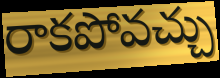
రాకపోవచ్చు